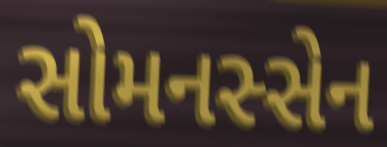
સોમનસ્સેન